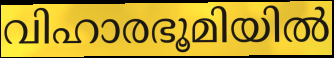
വിഹാരഭൂമിയിൽ